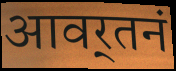
आवर्तनं